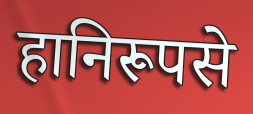
हानिरूपसे